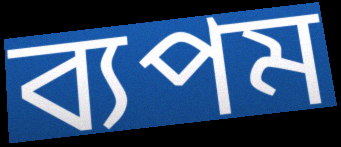
ব্যপম